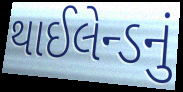
થાઈલેન્ડનું